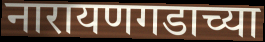
नारायणगडाच्या